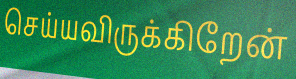
செய்யவிருக்கிறேன்